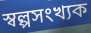
স্বল্পসংখ্যক